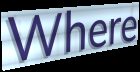
Where